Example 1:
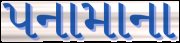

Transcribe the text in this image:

પનામાના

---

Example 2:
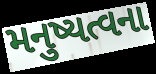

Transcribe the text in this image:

મનુષ્યત્વના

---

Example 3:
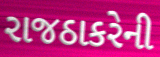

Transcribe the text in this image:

રાજઠાકરેની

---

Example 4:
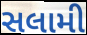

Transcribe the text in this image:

સલામી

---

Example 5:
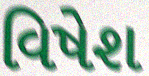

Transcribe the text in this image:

વિષેશ